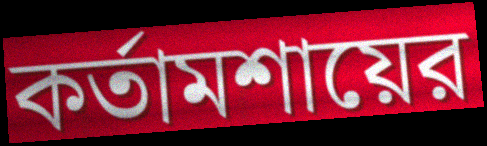
কর্তামশায়ের